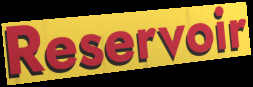
Reservoir